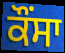
ਕੌਂਸਾ